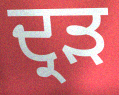
ਦ੍ਰੜ